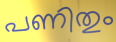
പണിതും